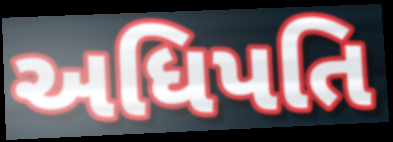
અધિપતિ